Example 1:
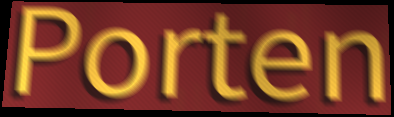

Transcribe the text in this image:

Porten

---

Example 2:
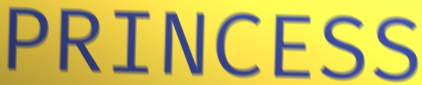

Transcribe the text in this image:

PRINCESS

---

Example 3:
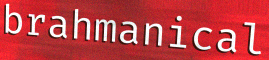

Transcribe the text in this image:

brahmanical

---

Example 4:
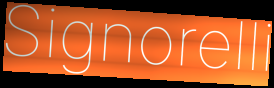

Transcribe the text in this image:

Signorelli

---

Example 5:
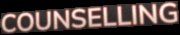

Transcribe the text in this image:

COUNSELLING